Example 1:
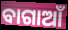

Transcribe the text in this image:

ବାଗାଆଁ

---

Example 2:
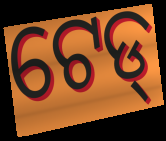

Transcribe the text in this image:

ଟେଡ୍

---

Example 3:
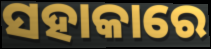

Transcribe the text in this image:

ସହାକାରେ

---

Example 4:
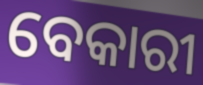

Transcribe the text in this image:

ବେକାରୀ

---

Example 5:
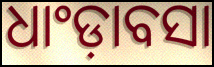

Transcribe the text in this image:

ଧାଂଡ଼ାବସା